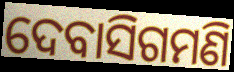
ଦେବାସିଗମଣି